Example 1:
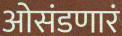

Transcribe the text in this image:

ओसंडणारं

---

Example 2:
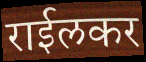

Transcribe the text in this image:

राईलकर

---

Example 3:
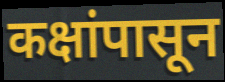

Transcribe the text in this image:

कक्षांपासून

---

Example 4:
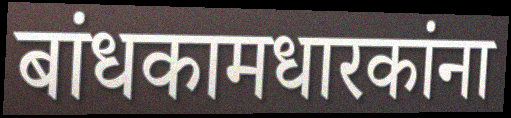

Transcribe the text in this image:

बांधकामधारकांना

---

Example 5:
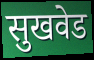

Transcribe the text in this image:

सुखवेड